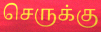
செருக்கு